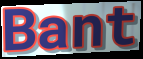
Bant